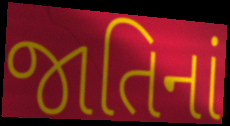
જાતિનાં